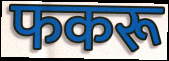
फकरू